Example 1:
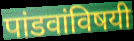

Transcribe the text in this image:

पांडवांविषयी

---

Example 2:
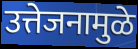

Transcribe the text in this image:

उत्तेजनामुळे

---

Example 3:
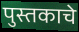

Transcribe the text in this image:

पुस्तकाचे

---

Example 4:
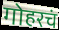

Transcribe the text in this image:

गोहरचं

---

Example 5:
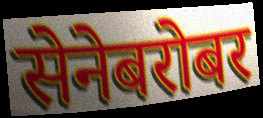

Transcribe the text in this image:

सेनेबरोबर